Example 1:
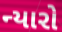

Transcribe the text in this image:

ન્યારો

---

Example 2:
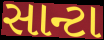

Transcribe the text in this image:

સાન્ટા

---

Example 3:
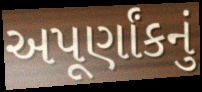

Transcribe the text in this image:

અપૂર્ણાંકનું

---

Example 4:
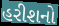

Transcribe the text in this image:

હરીશનો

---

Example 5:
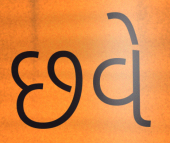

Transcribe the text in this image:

છવે